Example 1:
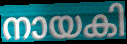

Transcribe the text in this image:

നായകി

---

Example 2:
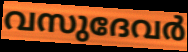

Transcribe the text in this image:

വസുദേവർ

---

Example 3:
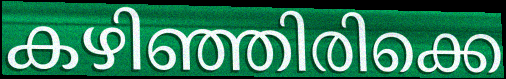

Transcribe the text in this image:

കഴിഞ്ഞിരിക്കെ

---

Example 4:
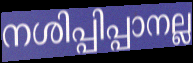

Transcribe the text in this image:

നശിപ്പിപ്പാനല്ല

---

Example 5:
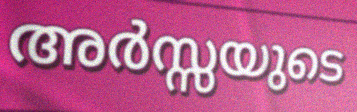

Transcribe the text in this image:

അർസ്സയുടെ